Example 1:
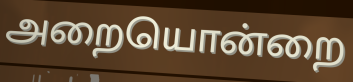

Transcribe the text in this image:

அறையொன்றை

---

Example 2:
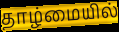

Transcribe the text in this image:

தாழ்மையில்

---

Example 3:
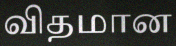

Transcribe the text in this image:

விதமான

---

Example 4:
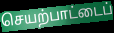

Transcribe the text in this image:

செயற்பாட்டைப்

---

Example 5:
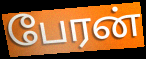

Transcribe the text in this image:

பேரன்